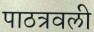
पाठत्रवली